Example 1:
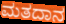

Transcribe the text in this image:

ಮತದಾನ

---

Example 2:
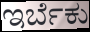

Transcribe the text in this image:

ಇರ್ಬೆಕು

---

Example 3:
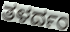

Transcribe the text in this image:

ತಳರ್ದಂ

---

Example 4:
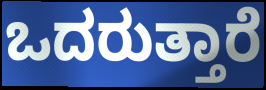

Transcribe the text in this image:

ಒದರುತ್ತಾರೆ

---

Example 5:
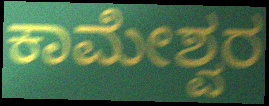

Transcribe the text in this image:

ಕಾಮೇಶ್ವರ